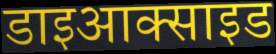
डाइआक्साइड